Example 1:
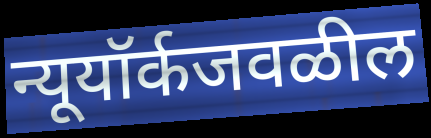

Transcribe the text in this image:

न्यूयॉर्कजवळील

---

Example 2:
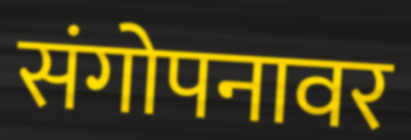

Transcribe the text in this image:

संगोपनावर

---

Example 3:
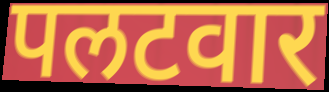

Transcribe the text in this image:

पलटवार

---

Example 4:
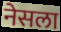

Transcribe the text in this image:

नेसला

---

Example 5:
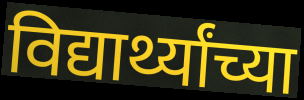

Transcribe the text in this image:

विद्यार्थ्यांच्या